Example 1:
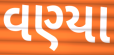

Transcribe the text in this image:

વણ્યા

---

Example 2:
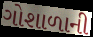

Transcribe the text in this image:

ગોશાળાની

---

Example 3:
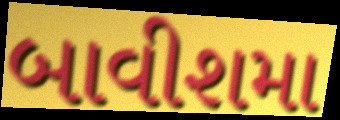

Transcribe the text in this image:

બાવીશમા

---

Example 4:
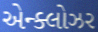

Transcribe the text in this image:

એન્ક્લોઝર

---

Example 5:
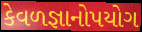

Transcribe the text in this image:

કેવળજ્ઞાનોપયોગ